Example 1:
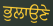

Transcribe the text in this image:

ਭੁਲਾਉਣੇ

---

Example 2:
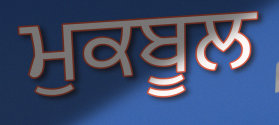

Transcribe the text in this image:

ਮੁਕਬੂਲ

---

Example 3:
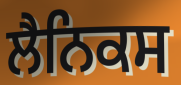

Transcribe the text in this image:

ਲੈਨਿਕਸ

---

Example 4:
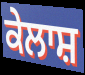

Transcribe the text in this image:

ਕੇਲਾਸ਼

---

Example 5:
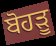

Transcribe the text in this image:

ਬੋਹੜੂ